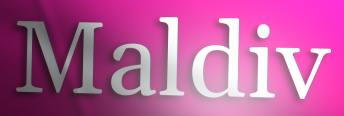
Maldiv